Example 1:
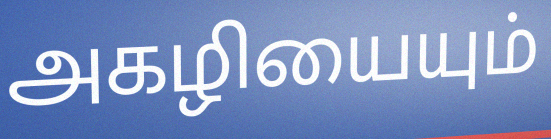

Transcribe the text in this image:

அகழியையும்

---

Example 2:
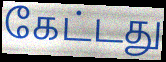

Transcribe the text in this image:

கேட்டது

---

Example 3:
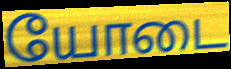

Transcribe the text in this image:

யோடை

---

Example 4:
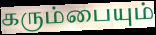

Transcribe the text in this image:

கரும்பையும்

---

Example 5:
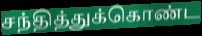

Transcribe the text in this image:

சந்தித்துக்கொண்ட